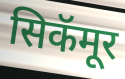
सिकॅमूर